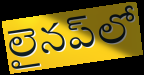
లైనప్‌లో